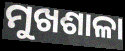
ମୁଖଶାଳା